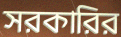
সরকারির